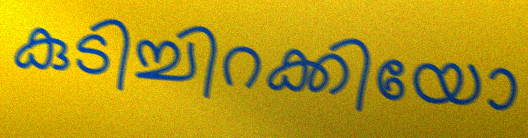
കുടിച്ചിറക്കിയോ